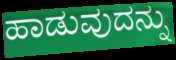
ಹಾಡುವುದನ್ನು